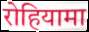
रोहियामा